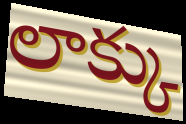
లాక్కు